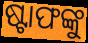
ଷ୍ଟାଫଙ୍କୁ